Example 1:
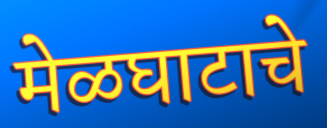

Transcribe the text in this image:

मेळघाटाचे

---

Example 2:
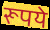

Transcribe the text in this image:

रूपये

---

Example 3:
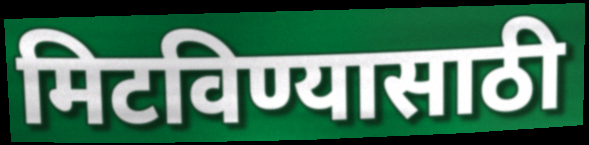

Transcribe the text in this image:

मिटविण्यासाठी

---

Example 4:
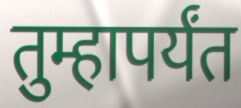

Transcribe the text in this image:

तुम्हापर्यंत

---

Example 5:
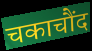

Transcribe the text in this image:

चकाचौंद